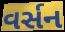
વર્સન